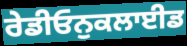
ਰੇਡੀਓਨੁਕਲਾਈਡ